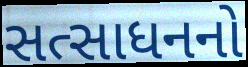
સત્સાધનનો